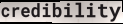
credibility